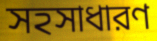
সহসাধারণ